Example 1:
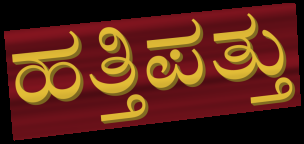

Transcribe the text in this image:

ಹತ್ತಿಪತ್ತು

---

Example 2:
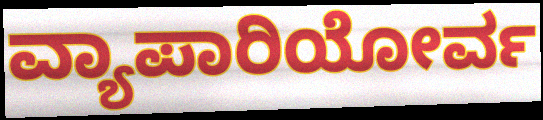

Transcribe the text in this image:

ವ್ಯಾಪಾರಿಯೋರ್ವ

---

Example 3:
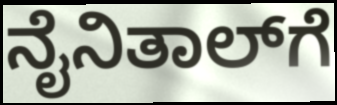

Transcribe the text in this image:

ನೈನಿತಾಲ್‌ಗೆ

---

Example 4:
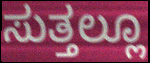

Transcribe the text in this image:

ಸುತ್ತಲ್ಲೂ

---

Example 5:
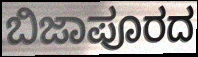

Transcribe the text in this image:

ಬಿಜಾಪೂರದ